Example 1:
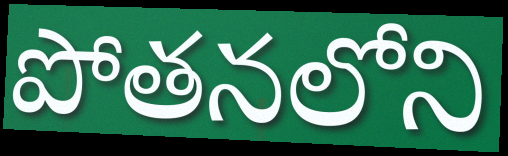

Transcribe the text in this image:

పోతనలోని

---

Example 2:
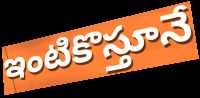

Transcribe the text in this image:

ఇంటికొస్తూనే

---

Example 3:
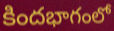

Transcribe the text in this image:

కిందభాగంలో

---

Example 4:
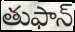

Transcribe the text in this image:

తుఫాన్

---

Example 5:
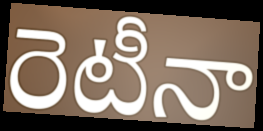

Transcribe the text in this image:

రెటీనా